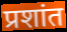
प्रशांत